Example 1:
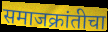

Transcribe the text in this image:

समाजक्रांतीचा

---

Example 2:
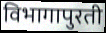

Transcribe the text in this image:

विभागापुरती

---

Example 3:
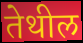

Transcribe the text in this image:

तेथील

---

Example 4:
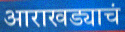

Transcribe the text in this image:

आराखड्याचं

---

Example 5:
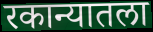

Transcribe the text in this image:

रकान्यातला